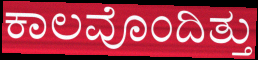
ಕಾಲವೊಂದಿತ್ತು